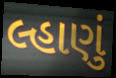
લ્હાણું